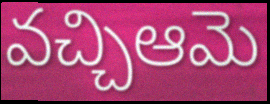
వచ్చిఆమె